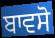
ਬਾਵਸੋ